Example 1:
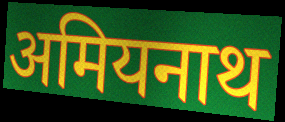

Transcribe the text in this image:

अमियनाथ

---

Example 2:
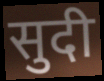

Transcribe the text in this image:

सुदी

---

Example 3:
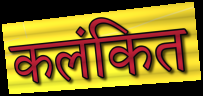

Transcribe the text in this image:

कलंकित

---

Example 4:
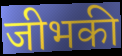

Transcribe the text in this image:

जीभकी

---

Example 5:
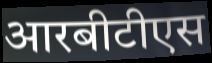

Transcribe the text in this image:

आरबीटीएस